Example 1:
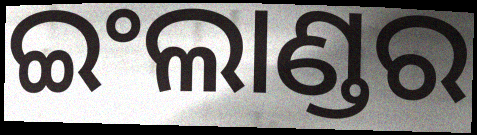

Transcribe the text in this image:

ଇଂଲାଣ୍ଡର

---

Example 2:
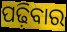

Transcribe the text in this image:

ପଢ଼ିବାର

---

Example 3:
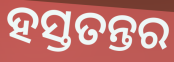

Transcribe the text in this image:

ହସ୍ତତନ୍ତର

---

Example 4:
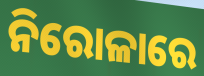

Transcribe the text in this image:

ନିରୋଳାରେ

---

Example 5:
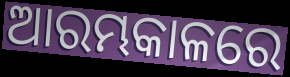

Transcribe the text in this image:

ଆରମ୍ଭକାଳରେ